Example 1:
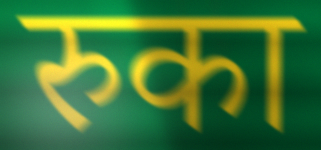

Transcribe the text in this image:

रुका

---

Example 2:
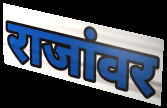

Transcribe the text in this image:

राजांवर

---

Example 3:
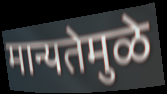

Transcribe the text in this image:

मान्यतेमुळे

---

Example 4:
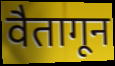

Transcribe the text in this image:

वैतागून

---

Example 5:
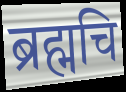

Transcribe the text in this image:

ब्रह्मचि